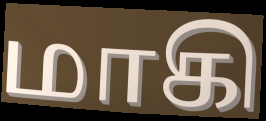
மாகி